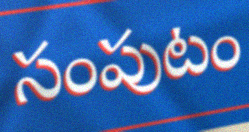
సంపుటం